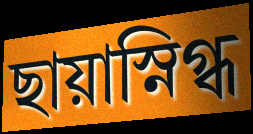
ছায়াস্নিগ্ধ